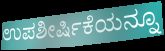
ಉಪಶೀರ್ಷಿಕೆಯನ್ನೂ